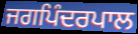
ਜਗਪਿੰਦਰਪਾਲ